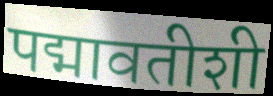
पद्मावतीशी